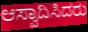
ಆಸ್ವಾದಿಸಿದರು